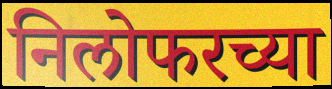
निलोफरच्या